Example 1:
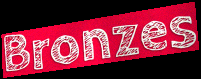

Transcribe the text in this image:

Bronzes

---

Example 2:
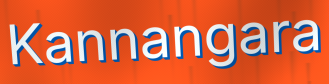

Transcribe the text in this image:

Kannangara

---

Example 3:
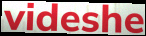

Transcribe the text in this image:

videshe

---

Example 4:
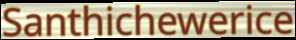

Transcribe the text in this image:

Santhichewerice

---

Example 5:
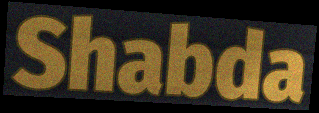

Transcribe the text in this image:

Shabda